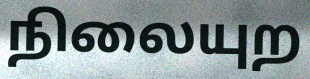
நிலையுற